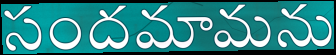
సందమామను